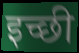
इच्छी